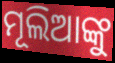
ମୂଲିଆଙ୍କୁ